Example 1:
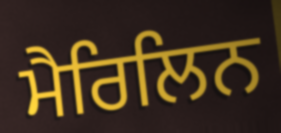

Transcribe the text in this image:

ਮੈਰਿਲਿਨ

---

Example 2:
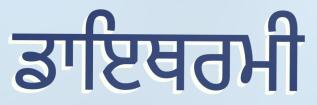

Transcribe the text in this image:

ਡਾਇਥਰਮੀ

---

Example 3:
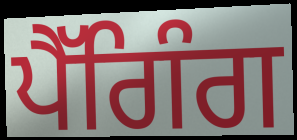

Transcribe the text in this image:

ਪੈੱਗਿੰਗ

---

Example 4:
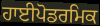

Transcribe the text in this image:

ਹਾਈਪੋਡਰਮਿਕ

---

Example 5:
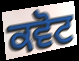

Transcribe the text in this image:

ਕਵੋਟ